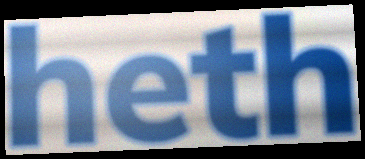
heth